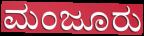
ಮಂಜೂರು